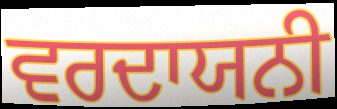
ਵਰਦਾਯਨੀ